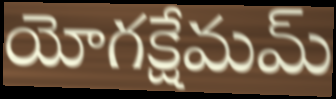
యోగక్షేమమ్